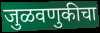
जुळवणुकीचा